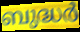
ബുദ്ധർ